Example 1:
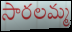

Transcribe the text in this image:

సారలమ్మ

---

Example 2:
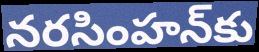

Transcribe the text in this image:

నరసింహన్‌కు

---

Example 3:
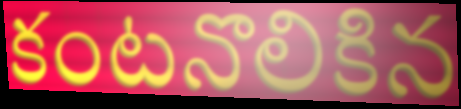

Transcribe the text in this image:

కంటనొలికిన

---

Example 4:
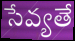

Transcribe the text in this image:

సేవ్యతే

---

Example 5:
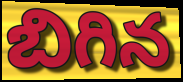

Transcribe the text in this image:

బిగిన